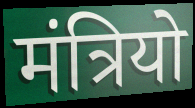
मंत्रियो